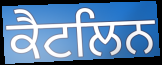
ਕੈਟਲਿਨ